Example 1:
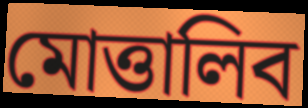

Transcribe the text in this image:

মোত্তালিব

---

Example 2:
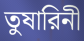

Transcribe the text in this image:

তুষারিনী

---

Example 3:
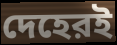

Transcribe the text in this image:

দেহেরই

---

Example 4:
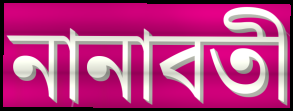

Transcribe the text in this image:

নানাবতী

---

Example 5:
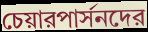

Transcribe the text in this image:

চেয়ারপার্সনদের